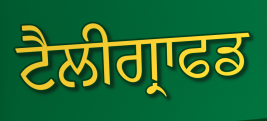
ਟੈਲੀਗ੍ਰਾਫਡ